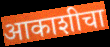
आकाशीचा